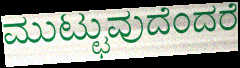
ಮುಟ್ಟುವುದೆಂದರೆ